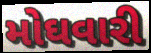
મોઘવારી